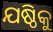
ଯଷ୍ଠିକୁ